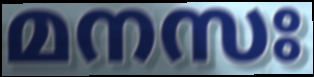
മനസഃ